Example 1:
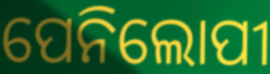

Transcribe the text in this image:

ପେନିଲୋପୀ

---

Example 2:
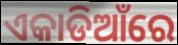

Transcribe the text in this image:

ଏକାଡିଆଁରେ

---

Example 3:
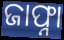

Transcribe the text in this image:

ଜାଫ୍ନା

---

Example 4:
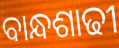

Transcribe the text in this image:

ବାନ୍ଧଶାଢୀ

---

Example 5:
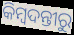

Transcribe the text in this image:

କିମ୍ବଦନ୍ତୀରୁ